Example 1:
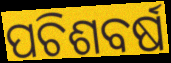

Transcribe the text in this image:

ପଚିଶବର୍ଷ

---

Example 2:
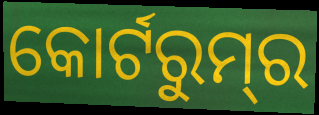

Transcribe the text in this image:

କୋର୍ଟରୁମ୍‌ର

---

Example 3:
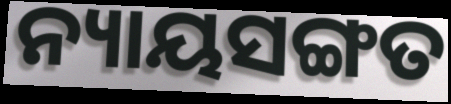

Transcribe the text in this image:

ନ୍ୟାୟସଙ୍ଗତ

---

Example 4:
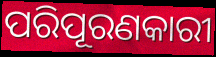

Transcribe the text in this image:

ପରିପୂରଣକାରୀ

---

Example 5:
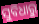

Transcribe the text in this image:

ସୁବିଧାରୁ